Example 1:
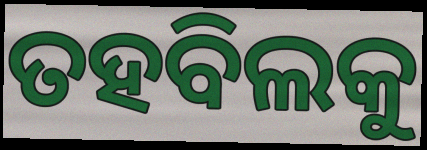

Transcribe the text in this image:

ତହବିଲକୁ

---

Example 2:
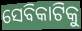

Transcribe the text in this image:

ସେବିକାଟିକୁ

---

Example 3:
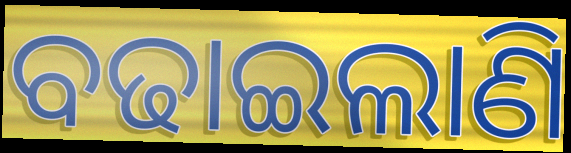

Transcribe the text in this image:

ବଢାଇଲାଣି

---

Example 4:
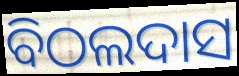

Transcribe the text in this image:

ବିଠଲଦାସ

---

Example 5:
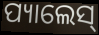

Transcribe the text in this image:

ପ୍ୟାଲେସ୍